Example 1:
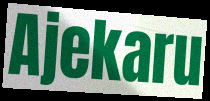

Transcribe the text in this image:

Ajekaru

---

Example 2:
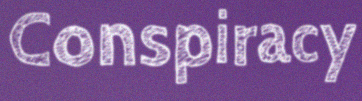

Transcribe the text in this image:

Conspiracy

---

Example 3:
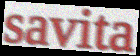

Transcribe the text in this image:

savita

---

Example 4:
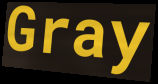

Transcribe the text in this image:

Gray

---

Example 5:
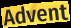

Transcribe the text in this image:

Advent